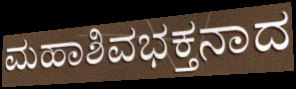
ಮಹಾಶಿವಭಕ್ತನಾದ